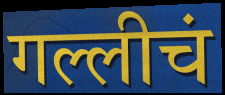
गल्लीचं